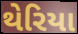
થેરિયા